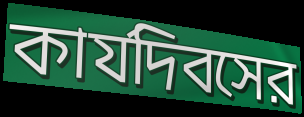
কার্যদিবসের